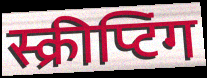
स्क्रीप्टिंग